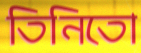
তিনিতো